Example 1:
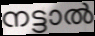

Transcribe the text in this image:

നട്ടാൽ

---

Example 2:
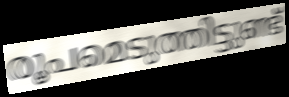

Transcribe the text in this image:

രൂപമെടുത്തിട്ടുണ്ട്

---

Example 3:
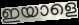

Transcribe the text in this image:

ഇയാളെ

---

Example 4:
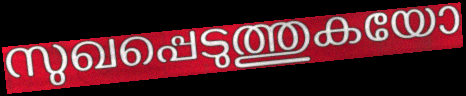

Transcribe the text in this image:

സുഖപ്പെടുത്തുകയോ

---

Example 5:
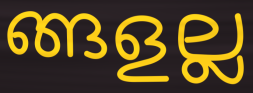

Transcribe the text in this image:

ങ്ങളല്ല